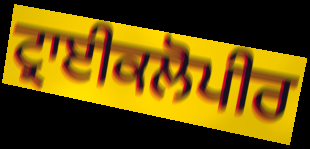
ਟ੍ਰਾਈਕਲੋਪੀਰ